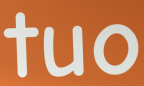
tuo